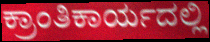
ಕ್ರಾಂತಿಕಾರ್ಯದಲ್ಲಿ